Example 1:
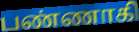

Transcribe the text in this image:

பண்ணாகி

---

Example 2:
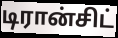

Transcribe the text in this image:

டிரான்சிட்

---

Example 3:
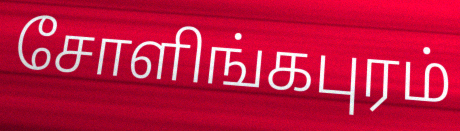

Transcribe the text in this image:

சோளிங்கபுரம்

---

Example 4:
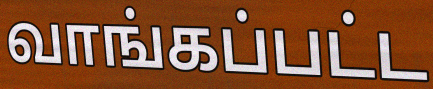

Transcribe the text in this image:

வாங்கப்பட்ட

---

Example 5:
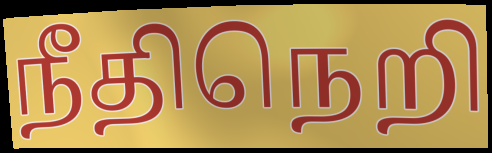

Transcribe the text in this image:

நீதிநெறி